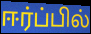
ஈர்ப்பில்